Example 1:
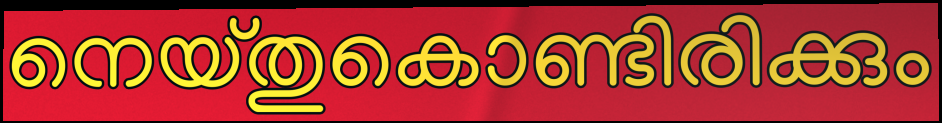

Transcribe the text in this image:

നെയ്തുകൊണ്ടിരിക്കും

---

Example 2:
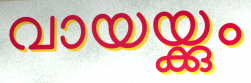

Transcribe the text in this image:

വായയ്ക്കും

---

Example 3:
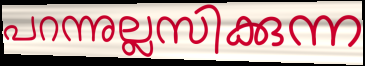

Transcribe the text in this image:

പറന്നുല്ലസിക്കുന്ന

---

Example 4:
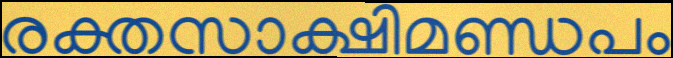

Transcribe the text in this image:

രക്തസാക്ഷിമണ്ഡപം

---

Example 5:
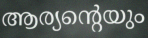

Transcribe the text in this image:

ആര്യന്റെയും